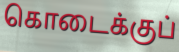
கொடைக்குப்